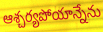
ఆశ్చర్యపోయాన్నేను